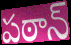
పఠాన్